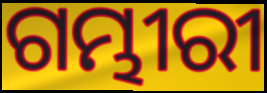
ଗମ୍ଭୀରୀ